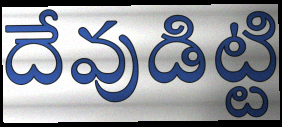
దేవుడిట్టి